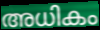
അധികം